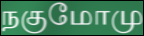
நகுமோமு